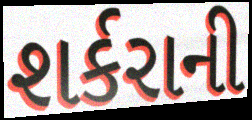
શર્કરાની